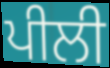
ਪੀਲੀ